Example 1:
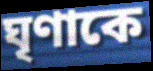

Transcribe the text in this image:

ঘৃণাকে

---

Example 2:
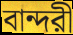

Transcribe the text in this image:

বান্দরী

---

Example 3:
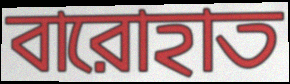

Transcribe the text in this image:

বারোহাত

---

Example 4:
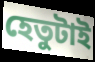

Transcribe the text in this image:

হেতুটাই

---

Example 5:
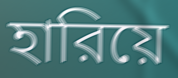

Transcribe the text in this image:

হারিয়ে